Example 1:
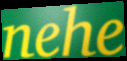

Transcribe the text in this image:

nehe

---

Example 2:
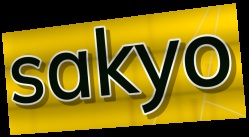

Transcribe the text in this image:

sakyo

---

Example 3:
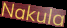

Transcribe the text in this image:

Nakula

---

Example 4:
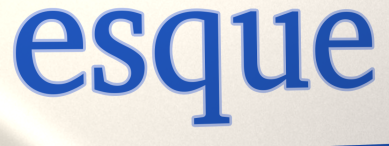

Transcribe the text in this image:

esque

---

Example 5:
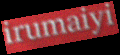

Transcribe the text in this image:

irumaiyi